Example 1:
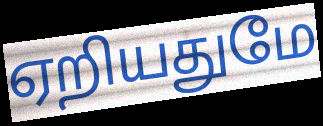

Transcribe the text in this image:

ஏறியதுமே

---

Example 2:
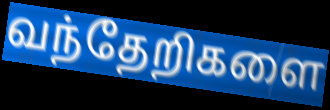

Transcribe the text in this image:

வந்தேறிகளை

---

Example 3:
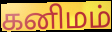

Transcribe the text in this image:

கனிமம்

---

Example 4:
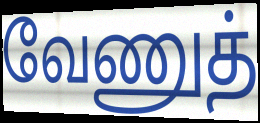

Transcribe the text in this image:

வேணுத்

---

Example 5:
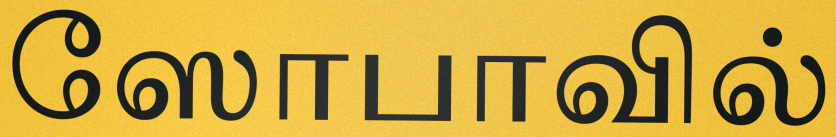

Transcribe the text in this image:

ஸோபாவில்